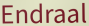
Endraal